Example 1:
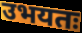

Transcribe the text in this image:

उभयतः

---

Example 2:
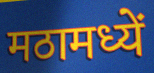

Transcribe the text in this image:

मठामध्यें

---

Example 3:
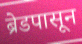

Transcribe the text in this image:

ब्रेडपासून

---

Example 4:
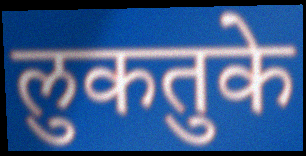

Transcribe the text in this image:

लुकतुके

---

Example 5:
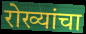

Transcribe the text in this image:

रोख्यांचा